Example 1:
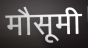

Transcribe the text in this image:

मौसूमी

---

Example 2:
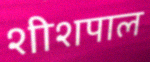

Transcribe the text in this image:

शीशपाल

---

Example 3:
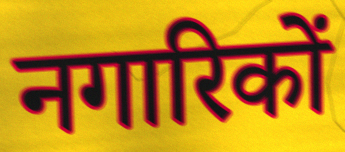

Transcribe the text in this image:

नगारिकों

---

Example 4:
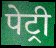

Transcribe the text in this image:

पेट्री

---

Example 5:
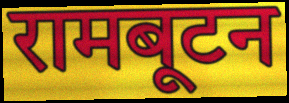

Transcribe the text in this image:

रामबूटन